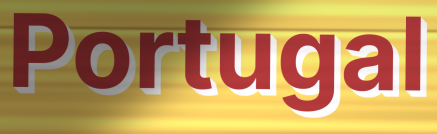
Portugal